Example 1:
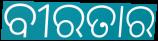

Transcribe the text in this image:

ବୀରତାର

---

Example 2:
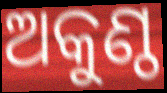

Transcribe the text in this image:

ଅକୁଣ୍ଠ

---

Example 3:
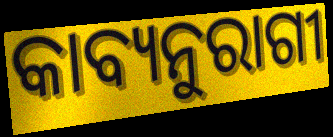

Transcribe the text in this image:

କାବ୍ୟନୁରାଗୀ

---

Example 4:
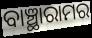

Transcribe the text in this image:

ବାଞ୍ଛାରାମର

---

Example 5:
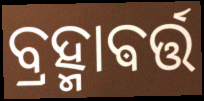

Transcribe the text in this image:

ବ୍ରହ୍ମାଵର୍ତ୍ତ